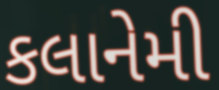
કલાનેમી